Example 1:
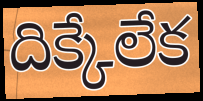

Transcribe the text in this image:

దిక్కేలేక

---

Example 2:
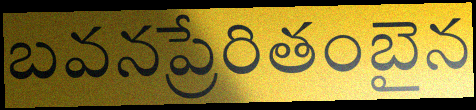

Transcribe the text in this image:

బవనప్రేరితంబైన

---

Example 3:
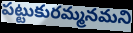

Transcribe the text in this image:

పట్టుకురమ్మనమని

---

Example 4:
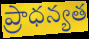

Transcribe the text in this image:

ప్రాధన్యత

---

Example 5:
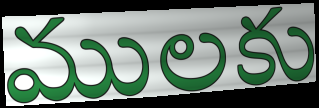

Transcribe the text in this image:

ములకు